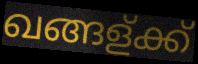
ഖങ്ങള്ക്ക്